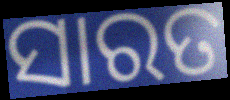
ସାରତ